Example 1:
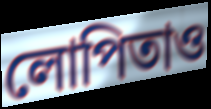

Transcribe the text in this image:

লোপিতাও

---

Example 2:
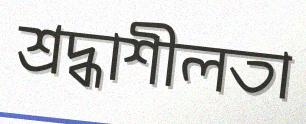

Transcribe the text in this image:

শ্রদ্ধাশীলতা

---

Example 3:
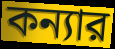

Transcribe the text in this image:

কন্যার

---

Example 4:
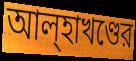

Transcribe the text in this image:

আল্হাখণ্ডের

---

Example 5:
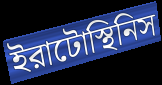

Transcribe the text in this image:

ইরাটোস্থিনিস